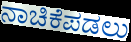
ನಾಚಿಕೆಪಡಲು